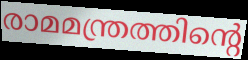
രാമമന്ത്രത്തിന്റെ